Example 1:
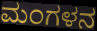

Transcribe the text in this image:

ಮಂಗಳನ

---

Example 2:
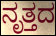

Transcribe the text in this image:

ನೃತ್ತದ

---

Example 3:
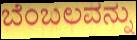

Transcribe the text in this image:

ಬೆಂಬಲವನ್ನು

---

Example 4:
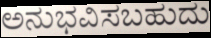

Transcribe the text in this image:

ಅನುಭವಿಸಬಹುದು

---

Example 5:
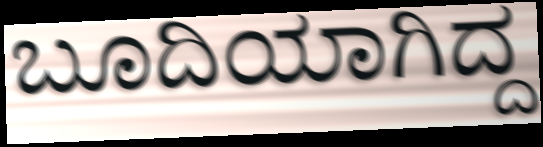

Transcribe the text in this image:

ಬೂದಿಯಾಗಿದ್ದ